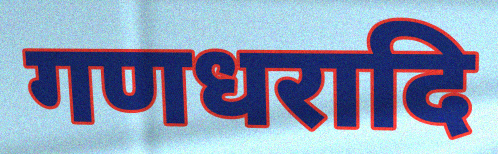
गणधरादि